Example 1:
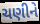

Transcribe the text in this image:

ચણીને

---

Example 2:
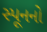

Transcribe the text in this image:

સ્પૂનનો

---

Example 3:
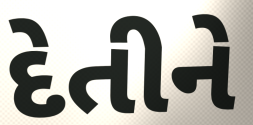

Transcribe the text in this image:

દેતીને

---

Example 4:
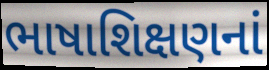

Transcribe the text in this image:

ભાષાશિક્ષણનાં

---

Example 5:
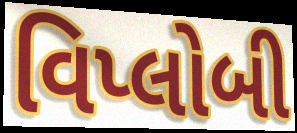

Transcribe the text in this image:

વિપ્લોબી